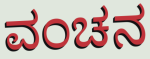
ವಂಚನ